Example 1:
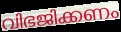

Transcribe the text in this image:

വിഭജിക്കണം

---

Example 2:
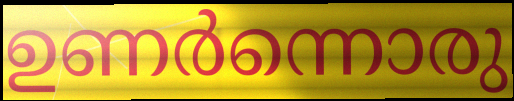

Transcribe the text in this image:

ഉണർന്നൊരു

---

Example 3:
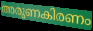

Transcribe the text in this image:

അരുണകിരണം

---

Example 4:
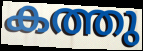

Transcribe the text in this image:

കത്തു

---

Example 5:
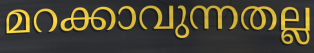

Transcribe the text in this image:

മറക്കാവുന്നതല്ല